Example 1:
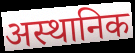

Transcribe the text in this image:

अस्थानिक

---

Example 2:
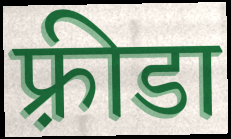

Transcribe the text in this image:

फ़्रीडा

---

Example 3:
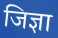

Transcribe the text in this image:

जिज्ञा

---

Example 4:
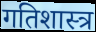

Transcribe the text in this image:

गतिशास्त्र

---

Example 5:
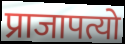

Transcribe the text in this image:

प्राजापत्यो